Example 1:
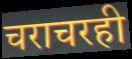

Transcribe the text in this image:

चराचरही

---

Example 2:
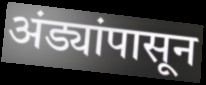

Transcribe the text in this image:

अंड्यांपासून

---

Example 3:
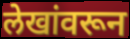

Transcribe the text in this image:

लेखांवरून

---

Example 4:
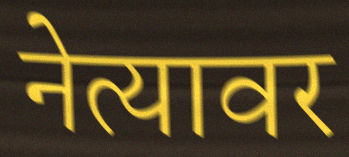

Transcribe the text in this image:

नेत्यावर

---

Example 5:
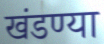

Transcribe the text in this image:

खंडण्या